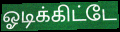
ஓடிக்கிட்டே